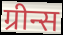
ग्रीन्स